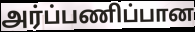
அர்ப்பணிப்பான